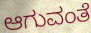
ಆಗುವಂತೆ